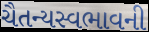
ચૈતન્યસ્વભાવની